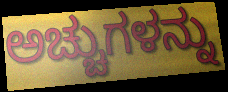
ಅಚ್ಚುಗಳನ್ನು